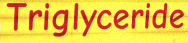
Triglyceride